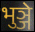
भुञ्जे